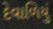
દેવાળિયું